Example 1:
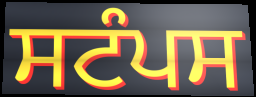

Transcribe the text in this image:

ਸਟੰਪਸ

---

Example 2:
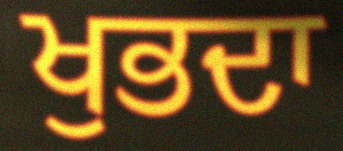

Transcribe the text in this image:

ਖੁਭਦਾ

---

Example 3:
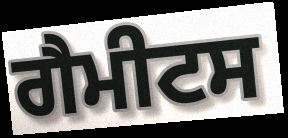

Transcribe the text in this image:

ਗੈਮੀਟਸ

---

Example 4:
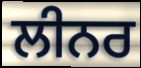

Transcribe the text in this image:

ਲੀਨਰ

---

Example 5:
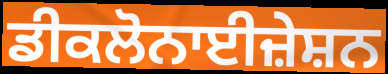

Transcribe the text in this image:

ਡੀਕਲੋਨਾਈਜ਼ੇਸ਼ਨ